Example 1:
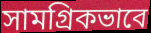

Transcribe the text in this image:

সামগ্ৰিকভাবে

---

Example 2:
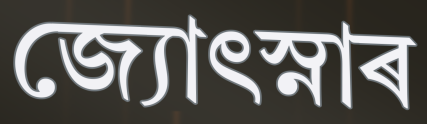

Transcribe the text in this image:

জ্যোৎস্নাৰ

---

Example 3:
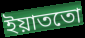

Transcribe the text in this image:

ইয়াততো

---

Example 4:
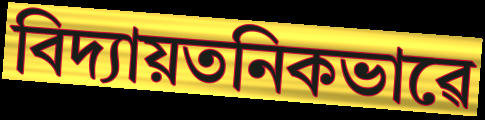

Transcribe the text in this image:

বিদ্য়ায়তনিকভাৱে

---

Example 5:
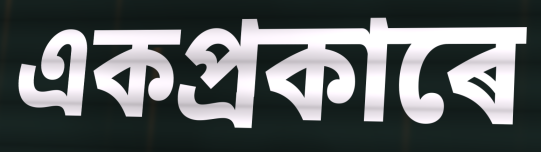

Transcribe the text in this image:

একপ্ৰকাৰে